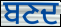
ਬਣਦ